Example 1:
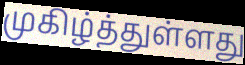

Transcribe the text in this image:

முகிழ்த்துள்ளது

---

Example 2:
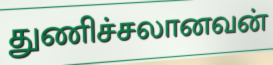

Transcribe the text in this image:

துணிச்சலானவன்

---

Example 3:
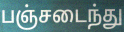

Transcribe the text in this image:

பஞ்சடைந்து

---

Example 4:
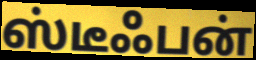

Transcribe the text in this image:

ஸ்டீஃபன்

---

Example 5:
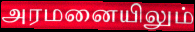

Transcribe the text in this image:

அரமனையிலும்